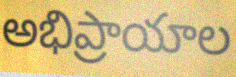
అభిప్రాయాల